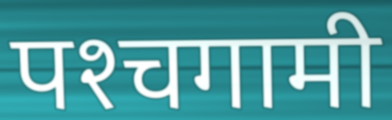
पश्चगामी